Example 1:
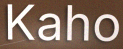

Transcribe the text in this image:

Kaho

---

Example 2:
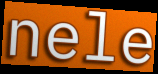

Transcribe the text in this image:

nele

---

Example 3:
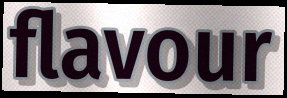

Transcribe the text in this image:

flavour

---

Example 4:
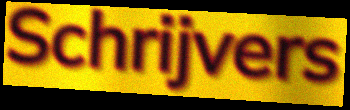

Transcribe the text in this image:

Schrijvers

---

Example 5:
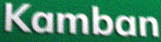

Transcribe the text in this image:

Kamban